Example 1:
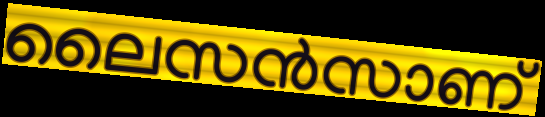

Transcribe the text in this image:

ലൈസൻസാണ്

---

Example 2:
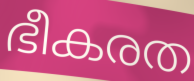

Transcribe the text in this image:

ഭീകരത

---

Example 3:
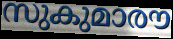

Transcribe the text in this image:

സുകുമാരൗ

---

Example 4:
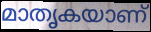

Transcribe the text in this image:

മാതൃകയാണ്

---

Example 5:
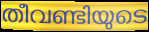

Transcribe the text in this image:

തീവണ്ടിയുടെ